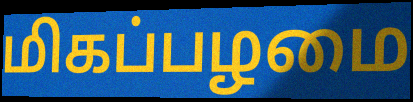
மிகப்பழமை